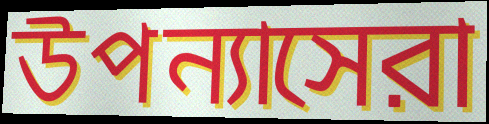
উপন্যাসেরা